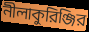
নীলাকুরিঞ্জির